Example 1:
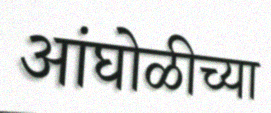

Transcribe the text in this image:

आंघोळीच्या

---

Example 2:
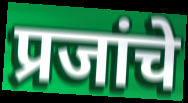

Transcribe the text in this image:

प्रजांचे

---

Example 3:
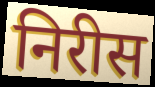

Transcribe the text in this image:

निरीस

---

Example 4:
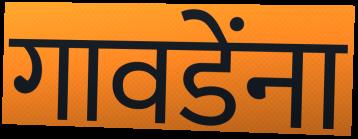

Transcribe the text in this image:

गावडेंना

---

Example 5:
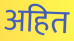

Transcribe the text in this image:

अहित